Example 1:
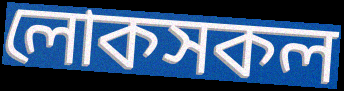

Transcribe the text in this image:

লোকসকল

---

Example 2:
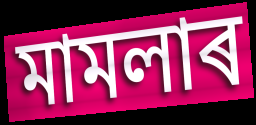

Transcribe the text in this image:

মামলাৰ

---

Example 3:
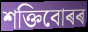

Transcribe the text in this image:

শক্তিবোৰৰ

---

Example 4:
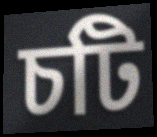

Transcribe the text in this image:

চটি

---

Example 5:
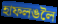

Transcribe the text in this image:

হাফলঙলৈ